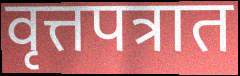
वृत्तपत्रात